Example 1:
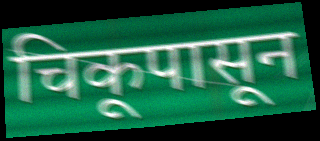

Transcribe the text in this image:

चिकूपासून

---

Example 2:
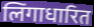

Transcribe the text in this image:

लिंगाधारित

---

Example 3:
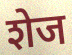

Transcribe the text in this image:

शेज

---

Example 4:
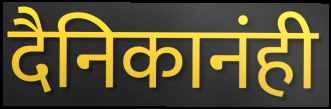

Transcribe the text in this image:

दैनिकानंही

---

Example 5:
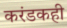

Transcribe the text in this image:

करंडकही